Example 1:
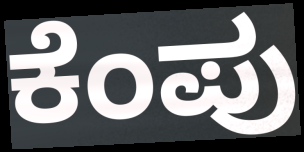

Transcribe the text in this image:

ಕೆಂಪು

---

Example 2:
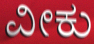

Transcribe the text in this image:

ವೀಕು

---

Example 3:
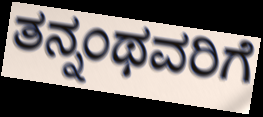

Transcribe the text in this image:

ತನ್ನಂಥವರಿಗೆ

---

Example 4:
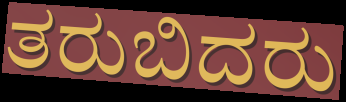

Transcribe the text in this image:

ತರುಬಿದರು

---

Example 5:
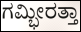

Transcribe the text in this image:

ಗಮ್ಭೀರತ್ತಾ